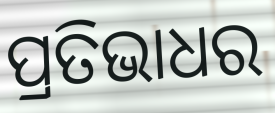
ପ୍ରତିଭାଧର